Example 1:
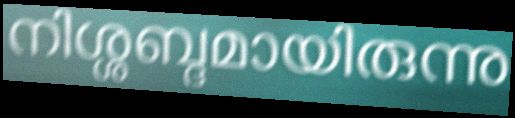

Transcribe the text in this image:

നിശ്ശബ്ദമായിരുന്നു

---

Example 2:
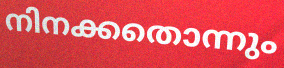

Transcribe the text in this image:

നിനക്കതൊന്നും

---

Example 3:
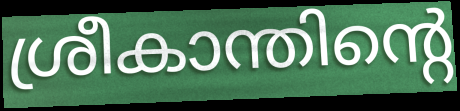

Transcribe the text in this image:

ശ്രീകാന്തിന്റെ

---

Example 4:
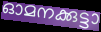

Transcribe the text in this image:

ഓമനക്കുട്ടാ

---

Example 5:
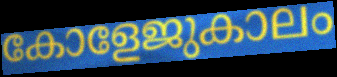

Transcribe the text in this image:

കോളേജുകാലം